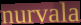
nurvala